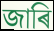
জাৰি